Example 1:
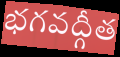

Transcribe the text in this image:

భగవద్గీత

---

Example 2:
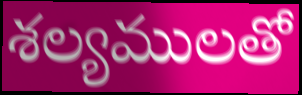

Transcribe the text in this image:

శల్యములతో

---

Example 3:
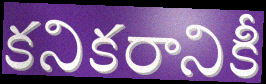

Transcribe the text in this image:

కనికరానికీ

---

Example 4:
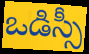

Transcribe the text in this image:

ఒడిస్సీ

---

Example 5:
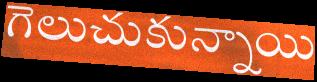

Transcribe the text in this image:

గెలుచుకున్నాయి